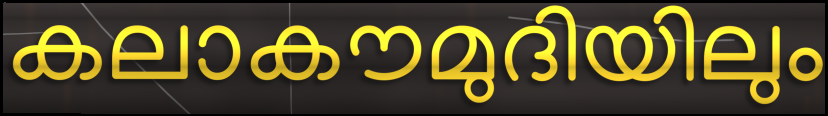
കലാകൗമുദിയിലും